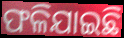
ଫଳିଯାଇଛି